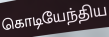
கொடியேந்திய